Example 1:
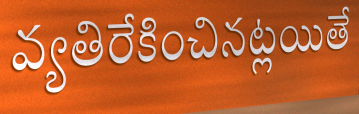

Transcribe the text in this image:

వ్యతిరేకించినట్లయితే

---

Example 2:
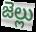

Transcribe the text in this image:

జెల్లు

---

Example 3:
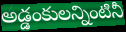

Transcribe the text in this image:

అడ్డంకులన్నింటినీ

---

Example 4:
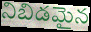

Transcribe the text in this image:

నిబిడమైన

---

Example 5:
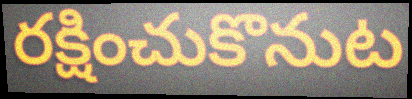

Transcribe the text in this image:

రక్షించుకొనుట